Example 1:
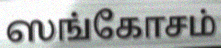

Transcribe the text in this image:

ஸங்கோசம்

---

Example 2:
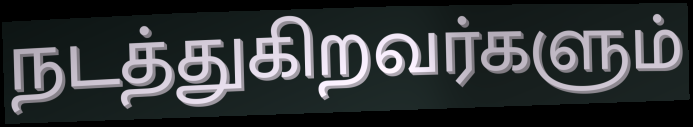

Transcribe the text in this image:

நடத்துகிறவர்களும்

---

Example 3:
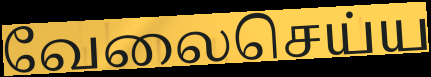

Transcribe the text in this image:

வேலைசெய்ய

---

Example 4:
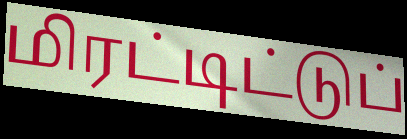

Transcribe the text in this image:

மிரட்டிட்டுப்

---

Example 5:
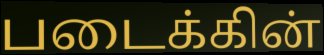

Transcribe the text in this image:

படைக்கின்